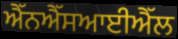
ਐੱਨਐੱਸਆਈਐੱਲ